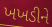
ખખડીને